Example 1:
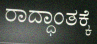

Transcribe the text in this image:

ರಾದ್ಧಾಂತಕ್ಕೆ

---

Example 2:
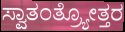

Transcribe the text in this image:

ಸ್ವಾತಂತ್ರ್ಯೋತ್ತರ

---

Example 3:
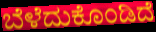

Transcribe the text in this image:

ಬೆಳೆದುಕೊಂಡಿದೆ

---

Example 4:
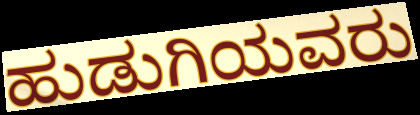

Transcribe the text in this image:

ಹುಡುಗಿಯವರು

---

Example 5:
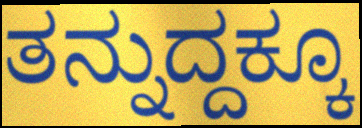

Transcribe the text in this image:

ತನ್ನುದ್ದಕ್ಕೂ